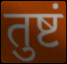
तुष्टं